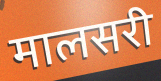
मालसरी